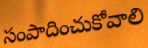
సంపాదించుకోవాలి